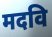
मदवि